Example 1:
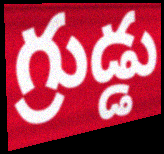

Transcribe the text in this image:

గ్రుడ్డు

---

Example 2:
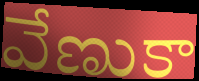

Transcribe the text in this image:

వేణుకా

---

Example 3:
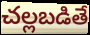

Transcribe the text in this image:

చల్లబడితే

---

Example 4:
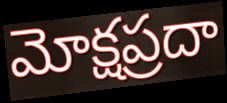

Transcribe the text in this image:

మోక్షప్రదా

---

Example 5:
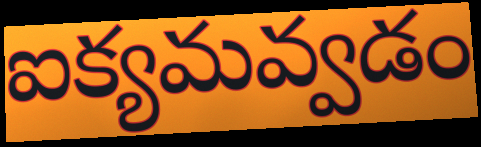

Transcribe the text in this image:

ఐక్యమవ్వడం